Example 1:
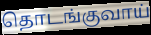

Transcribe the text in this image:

தொடங்குவாய்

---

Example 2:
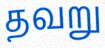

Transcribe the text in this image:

தவறு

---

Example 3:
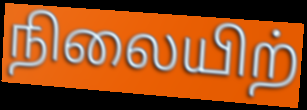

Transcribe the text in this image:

நிலையிற்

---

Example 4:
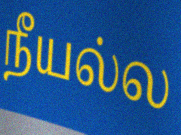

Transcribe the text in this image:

நீயல்ல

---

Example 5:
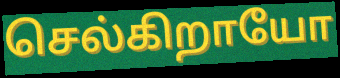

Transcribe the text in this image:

செல்கிறாயோ